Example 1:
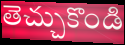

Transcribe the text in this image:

తెచ్చుకొండి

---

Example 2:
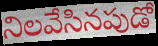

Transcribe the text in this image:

నిలవేసినపుడో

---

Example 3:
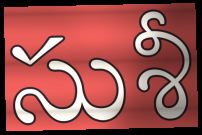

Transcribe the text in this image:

సుశీ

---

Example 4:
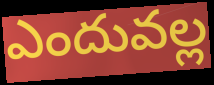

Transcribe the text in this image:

ఎందువల్ల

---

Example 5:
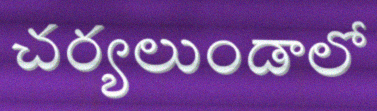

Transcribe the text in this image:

చర్యలుండాలో